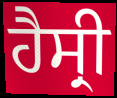
ਹੈਸ੍ਰੀ